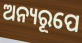
ଅନ୍ୟରୂପେ